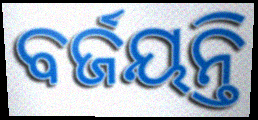
ବର୍ଜୟନ୍ତି